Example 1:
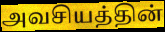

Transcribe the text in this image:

அவசியத்தின்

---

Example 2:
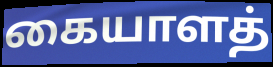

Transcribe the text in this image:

கையாளத்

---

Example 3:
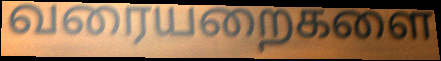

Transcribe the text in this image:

வரையறைகளை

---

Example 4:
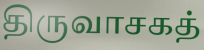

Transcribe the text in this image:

திருவாசகத்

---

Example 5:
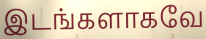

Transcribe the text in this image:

இடங்களாகவே